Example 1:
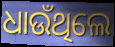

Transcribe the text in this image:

ଧାଉଁଥିଲେ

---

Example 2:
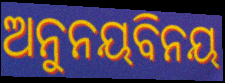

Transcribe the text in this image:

ଅନୁନୟବିନୟ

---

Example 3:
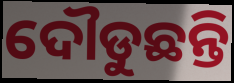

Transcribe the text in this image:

ଦୌଡୁଛନ୍ତି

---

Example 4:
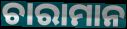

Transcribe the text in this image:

ଚାରାମାନ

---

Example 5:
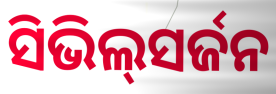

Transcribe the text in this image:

ସିଭିଲ୍‌ସର୍ଜନ